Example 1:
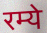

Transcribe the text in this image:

रम्ये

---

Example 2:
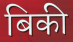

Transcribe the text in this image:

बिकी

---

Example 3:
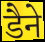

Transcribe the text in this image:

डैने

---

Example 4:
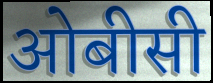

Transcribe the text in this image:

ओबीसी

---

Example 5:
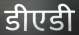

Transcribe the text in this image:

डीएडी